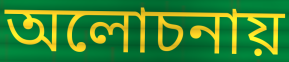
অলোচনায়